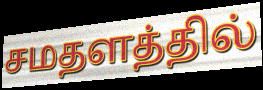
சமதளத்தில்